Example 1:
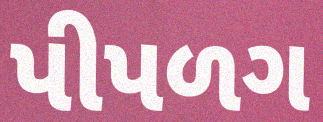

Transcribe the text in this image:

પીપળગ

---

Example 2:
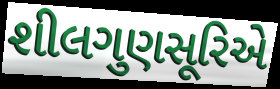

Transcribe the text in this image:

શીલગુણસૂરિએ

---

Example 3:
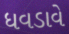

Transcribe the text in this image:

ધવડાવે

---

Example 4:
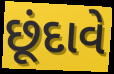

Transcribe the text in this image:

છૂંદાવે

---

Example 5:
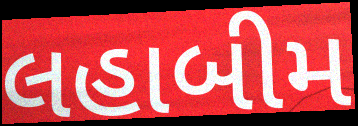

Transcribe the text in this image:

લહાબીમ